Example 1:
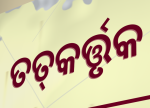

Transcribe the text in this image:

ତତ୍‌କର୍ତ୍ତୃକ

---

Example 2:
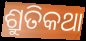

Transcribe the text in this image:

ଶ୍ରୁତିକଥା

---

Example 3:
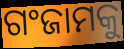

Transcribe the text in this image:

ଗଂଜାମକୁ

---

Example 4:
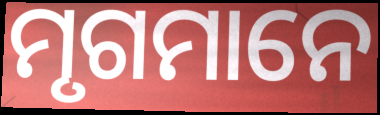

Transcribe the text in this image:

ମୃଗମାନେ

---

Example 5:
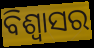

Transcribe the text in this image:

ବିଶ୍ୱାସର